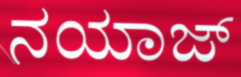
ನಯಾಜ್